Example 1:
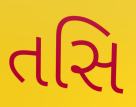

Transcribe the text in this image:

તસિ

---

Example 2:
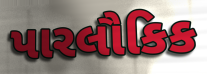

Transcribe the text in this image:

પારલૌકિક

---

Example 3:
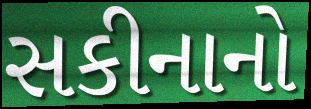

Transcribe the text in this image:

સકીનાનો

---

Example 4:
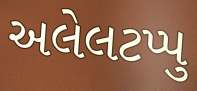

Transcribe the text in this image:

અલેલટપ્પુ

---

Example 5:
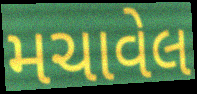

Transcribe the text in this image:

મચાવેલ